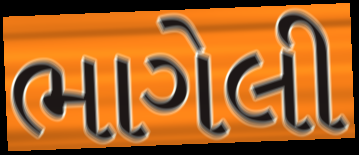
ભાગેલી